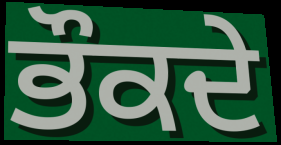
ਭੌਕਦੇ